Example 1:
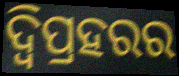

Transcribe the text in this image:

ଦ୍ୱିପ୍ରହରର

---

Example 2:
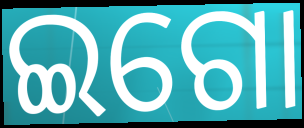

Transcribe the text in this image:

ଇଗୋ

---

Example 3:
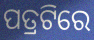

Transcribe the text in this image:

ପତ୍ରଟିରେ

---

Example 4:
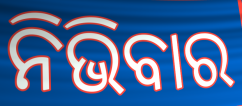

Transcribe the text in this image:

ନିଭିବାର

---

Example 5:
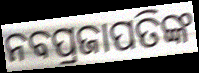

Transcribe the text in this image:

ନବପ୍ରଜାପତିଙ୍କ